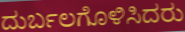
ದುರ್ಬಲಗೊಳಿಸಿದರು